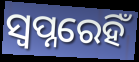
ସ୍ୱପ୍ନରେହିଁ